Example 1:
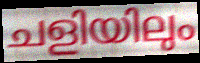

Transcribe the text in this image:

ചളിയിലും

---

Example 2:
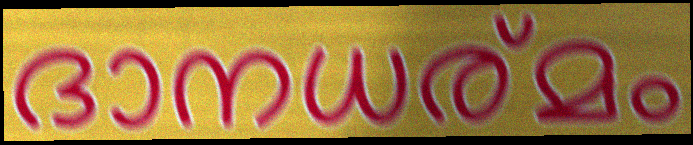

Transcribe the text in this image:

ദാനധര്മം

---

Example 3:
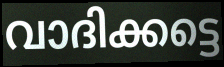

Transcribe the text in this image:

വാദിക്കട്ടെ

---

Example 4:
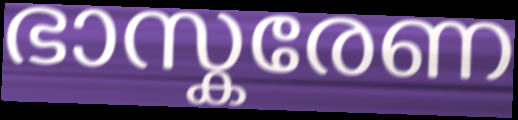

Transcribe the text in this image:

ഭാസ്കരേണ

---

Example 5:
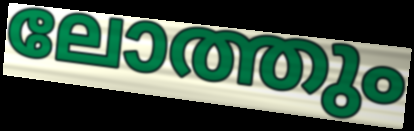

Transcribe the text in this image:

ലോത്തും